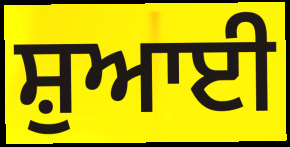
ਸ਼ੁਆਈ